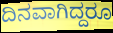
ದಿನವಾಗಿದ್ದರೂ